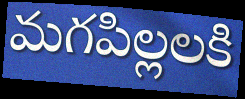
మగపిల్లలకి